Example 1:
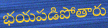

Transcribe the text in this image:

భయపడిపోతారు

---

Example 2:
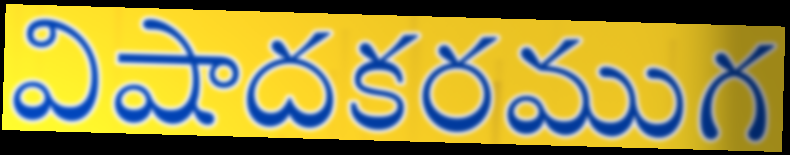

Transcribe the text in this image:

విషాదకరముగ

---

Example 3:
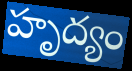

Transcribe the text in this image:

హృద్యం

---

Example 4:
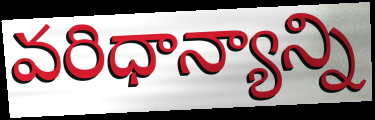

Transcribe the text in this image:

వరిధాన్యాన్ని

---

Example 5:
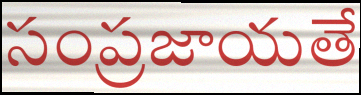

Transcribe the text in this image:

సంప్రజాయతే